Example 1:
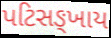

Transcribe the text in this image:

પટિસઙ્ખાય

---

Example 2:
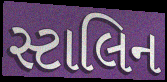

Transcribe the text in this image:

સ્ટાલિન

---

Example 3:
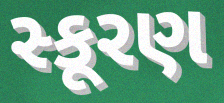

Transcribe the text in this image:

સ્કૂરણ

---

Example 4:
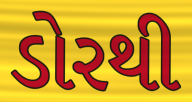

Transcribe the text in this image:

ડોરથી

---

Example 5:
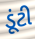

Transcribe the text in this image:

ડૂંટી